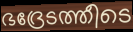
ഭദ്രേടത്തീടെ